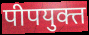
पीपयुक्त